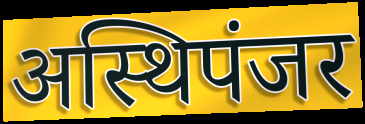
अस्थिपंजर